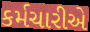
કર્મચારીએ